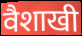
वैशाखी